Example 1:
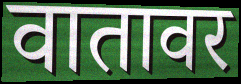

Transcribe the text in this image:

वातावर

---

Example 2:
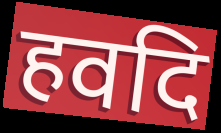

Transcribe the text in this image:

हवदि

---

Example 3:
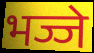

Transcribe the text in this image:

भज्जे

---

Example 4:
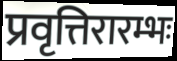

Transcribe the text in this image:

प्रवृत्तिरारम्भः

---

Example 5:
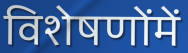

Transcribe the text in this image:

विशेषणोंमें